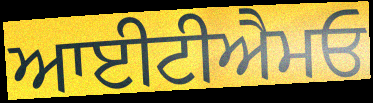
ਆਈਟੀਐਮਓ